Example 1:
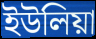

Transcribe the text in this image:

ইউলিয়া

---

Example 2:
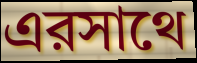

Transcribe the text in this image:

এরসাথে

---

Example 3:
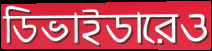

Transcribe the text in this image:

ডিভাইডারেও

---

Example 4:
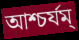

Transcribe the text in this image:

আশ্চর্যম্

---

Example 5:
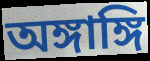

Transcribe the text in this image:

অঙ্গাঙ্গি